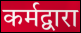
कर्मद्वारा